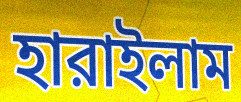
হারাইলাম